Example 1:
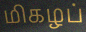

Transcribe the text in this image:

மிகழப்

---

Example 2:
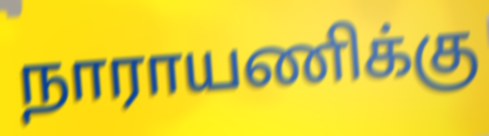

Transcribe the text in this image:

நாராயணிக்கு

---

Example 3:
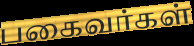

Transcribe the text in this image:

பகைவர்கள்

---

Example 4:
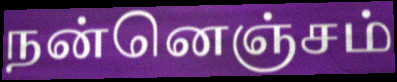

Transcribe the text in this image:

நன்னெஞ்சம்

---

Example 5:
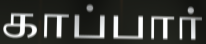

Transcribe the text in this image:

காப்பார்